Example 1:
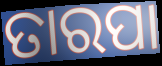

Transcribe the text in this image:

ତାରପା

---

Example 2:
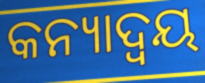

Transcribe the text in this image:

କନ୍ୟାଦ୍ୱୟ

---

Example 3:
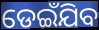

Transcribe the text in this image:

ଡେଇଁଯିବ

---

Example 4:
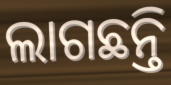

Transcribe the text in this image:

ଲାଗଛନ୍ତି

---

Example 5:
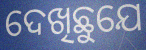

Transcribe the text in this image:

ଦେଖିଛୁଯେ